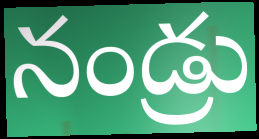
నండ్రు